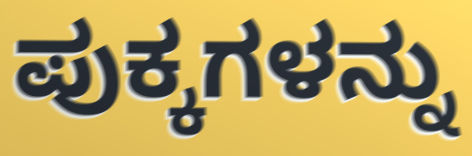
ಪುಕ್ಕಗಳನ್ನು